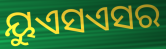
ୟୁଏସଏସର